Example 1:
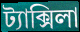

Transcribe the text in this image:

ট্যাক্সিলা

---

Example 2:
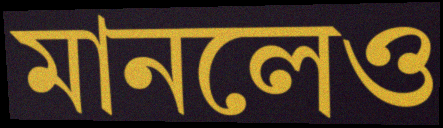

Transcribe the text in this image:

মানলেও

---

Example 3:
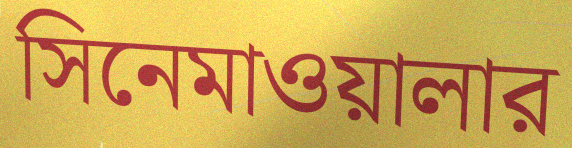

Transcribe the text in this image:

সিনেমাওয়ালার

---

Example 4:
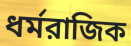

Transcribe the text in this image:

ধর্মরাজিক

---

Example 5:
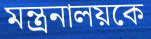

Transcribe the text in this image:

মন্ত্রনালয়কে